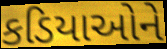
કડિયાઓને